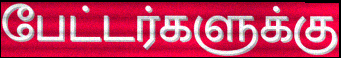
பேட்டர்களுக்கு